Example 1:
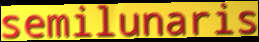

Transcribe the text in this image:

semilunaris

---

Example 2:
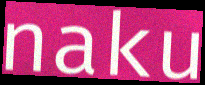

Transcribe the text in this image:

naku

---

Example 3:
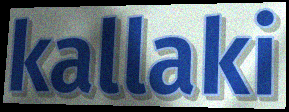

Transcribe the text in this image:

kallaki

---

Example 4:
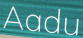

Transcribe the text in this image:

Aadu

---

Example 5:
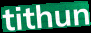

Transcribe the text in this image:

tithun